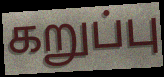
கறுப்பு